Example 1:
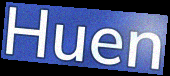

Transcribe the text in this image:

Huen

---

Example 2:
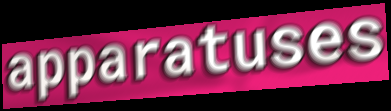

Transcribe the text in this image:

apparatuses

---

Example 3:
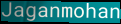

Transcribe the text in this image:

Jaganmohan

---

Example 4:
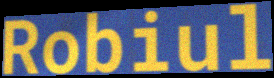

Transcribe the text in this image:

Robiul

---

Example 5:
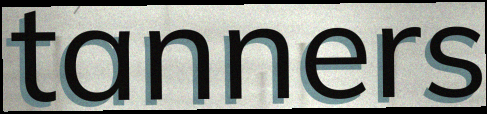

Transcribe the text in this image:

tanners